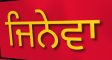
ਜਿਨੇਵਾ